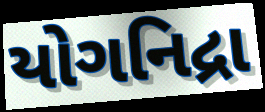
યોગનિદ્રા